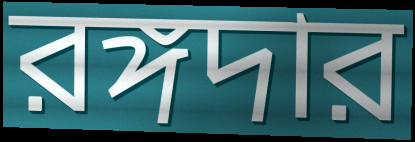
রঙ্গদার